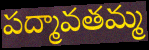
పద్మావతమ్మ